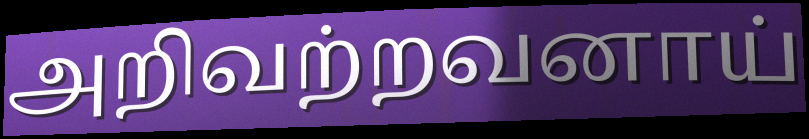
அறிவற்றவனாய்